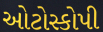
ઓટોસ્કોપી